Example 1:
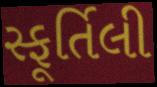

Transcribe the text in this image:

સ્ફૂર્તિલી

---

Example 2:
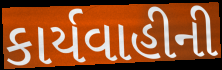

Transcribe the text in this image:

કાર્યવાહીની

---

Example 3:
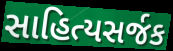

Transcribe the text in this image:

સાહિત્યસર્જક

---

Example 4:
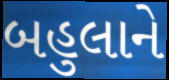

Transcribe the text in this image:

બહુલાને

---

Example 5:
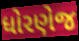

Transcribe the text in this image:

ધોરણેજ